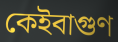
কেইবাগুণ